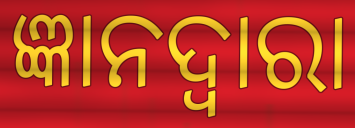
ଜ୍ଞାନଦ୍ଵାରା